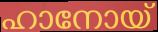
ഹാനോയ്